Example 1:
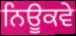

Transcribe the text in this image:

ਨਿਊਕਵੇ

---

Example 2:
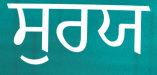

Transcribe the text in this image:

ਸੁਰਯ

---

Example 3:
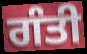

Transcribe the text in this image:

ਗੰਤੀ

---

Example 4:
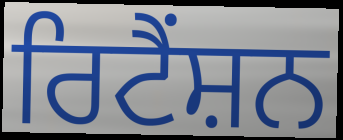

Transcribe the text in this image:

ਰਿਟੈਂਸ਼ਨ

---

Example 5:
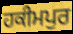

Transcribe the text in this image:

ਹਕੀਮਪੁਰ